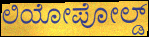
ಲಿಯೋಪೋಲ್ಡ್